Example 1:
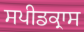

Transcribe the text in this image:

ਸਪੀਡਕ੍ਰਾਸ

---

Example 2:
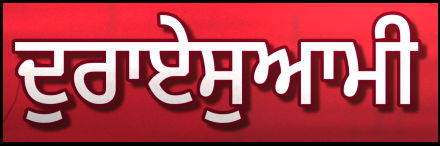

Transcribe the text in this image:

ਦੁਰਾਏਸੁਆਮੀ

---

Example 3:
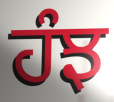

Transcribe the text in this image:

ਹੰਝ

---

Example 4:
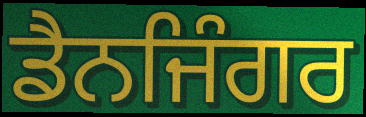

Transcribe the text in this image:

ਡੈਨਜਿੰਗਰ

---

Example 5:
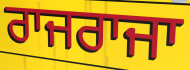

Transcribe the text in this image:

ਰਾਜਰਾਜਾ